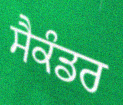
ਸੈਕੰਡਰ